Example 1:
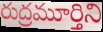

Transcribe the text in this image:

రుద్రమూర్తిని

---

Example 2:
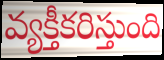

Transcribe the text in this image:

వ్యక్తీకరిస్తుంది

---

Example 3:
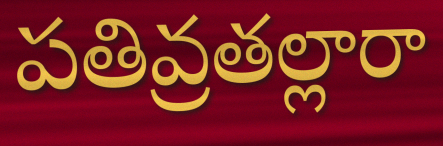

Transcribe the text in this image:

పతివ్రతల్లారా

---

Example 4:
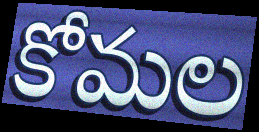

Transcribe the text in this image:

కోమల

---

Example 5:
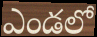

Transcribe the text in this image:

ఎండలో